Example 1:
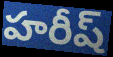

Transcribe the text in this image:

హరీష్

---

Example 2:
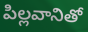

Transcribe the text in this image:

పిల్లవానితో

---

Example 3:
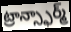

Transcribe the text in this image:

ట్రాన్స్ఫార్మ్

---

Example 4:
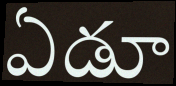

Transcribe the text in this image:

ఏడూ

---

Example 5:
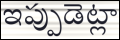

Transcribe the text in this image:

ఇప్పుడెట్లా